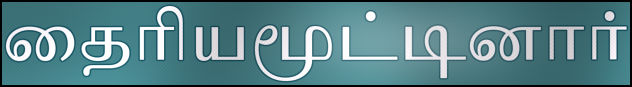
தைரியமூட்டினார்